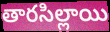
తారసిల్లాయి